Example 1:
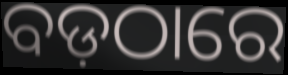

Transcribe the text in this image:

ବଡ଼ଠାରେ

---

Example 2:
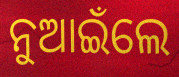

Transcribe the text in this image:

ନୁଆଇଁଲେ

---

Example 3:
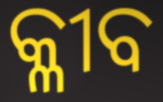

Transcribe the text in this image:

କ୍ଳୀବ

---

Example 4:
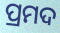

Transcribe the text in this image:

ପ୍ରମଦ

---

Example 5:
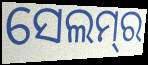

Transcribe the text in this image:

ସେଲମ୍‌ର